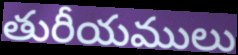
తురీయములు